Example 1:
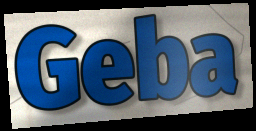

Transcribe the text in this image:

Geba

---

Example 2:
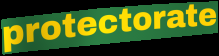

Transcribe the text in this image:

protectorate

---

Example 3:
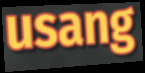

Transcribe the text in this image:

usang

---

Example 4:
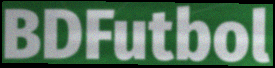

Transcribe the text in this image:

BDFutbol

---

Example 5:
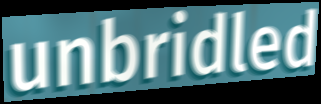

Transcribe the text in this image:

unbridled